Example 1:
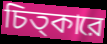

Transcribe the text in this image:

চিত্কারে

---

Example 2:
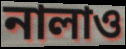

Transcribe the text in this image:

নালাও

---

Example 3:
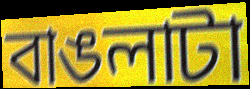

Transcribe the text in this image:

বাঙলাটা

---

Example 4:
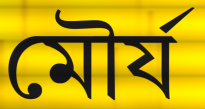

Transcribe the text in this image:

মৌর্য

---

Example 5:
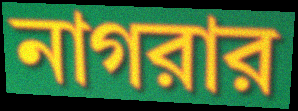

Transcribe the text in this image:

নাগরার